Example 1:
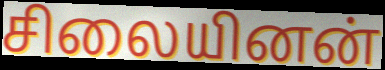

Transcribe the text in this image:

சிலையினன்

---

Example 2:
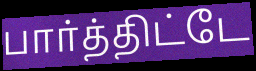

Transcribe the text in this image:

பார்த்திட்டே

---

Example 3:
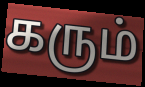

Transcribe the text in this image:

கரும்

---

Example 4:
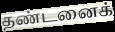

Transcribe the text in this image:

தண்டனைக்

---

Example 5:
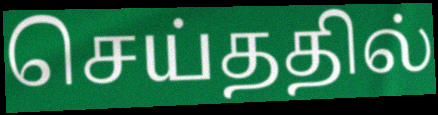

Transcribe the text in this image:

செய்ததில்